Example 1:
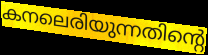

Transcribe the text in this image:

കനലെരിയുന്നതിന്റെ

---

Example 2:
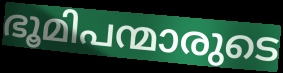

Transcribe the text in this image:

ഭൂമിപന്മാരുടെ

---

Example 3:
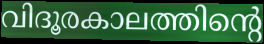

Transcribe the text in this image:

വിദൂരകാലത്തിന്റെ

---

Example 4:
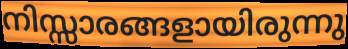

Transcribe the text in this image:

നിസ്സാരങ്ങളായിരുന്നു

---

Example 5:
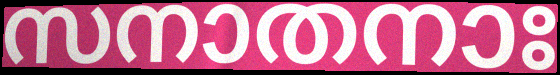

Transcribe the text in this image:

സനാതനാഃ